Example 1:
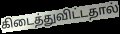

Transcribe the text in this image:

கிடைத்துவிட்டதால்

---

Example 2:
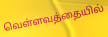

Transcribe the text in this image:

வெள்ளவத்தையில்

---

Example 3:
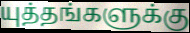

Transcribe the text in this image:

யுத்தங்களுக்கு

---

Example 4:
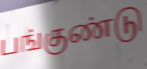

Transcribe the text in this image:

பங்குண்டு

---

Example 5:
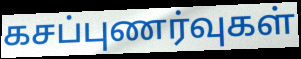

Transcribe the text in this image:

கசப்புணர்வுகள்